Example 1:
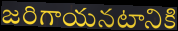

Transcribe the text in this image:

జరిగాయనటానికి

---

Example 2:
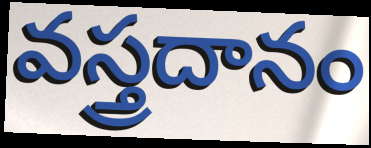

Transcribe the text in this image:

వస్త్రదానం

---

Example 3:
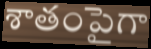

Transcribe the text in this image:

శాతంపైగా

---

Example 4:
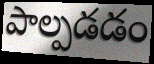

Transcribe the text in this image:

పాల్పడడం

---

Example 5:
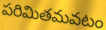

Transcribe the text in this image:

పరిమితమవటం